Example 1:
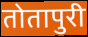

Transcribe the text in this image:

तोतापुरी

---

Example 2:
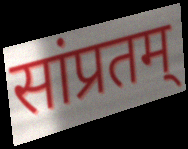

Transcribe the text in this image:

सांप्रतम्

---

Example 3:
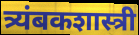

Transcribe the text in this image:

त्र्यंबकशास्त्री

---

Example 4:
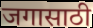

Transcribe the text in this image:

जगासाठी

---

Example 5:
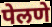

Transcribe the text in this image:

पेलणे